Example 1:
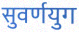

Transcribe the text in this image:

सुवर्णयुग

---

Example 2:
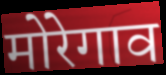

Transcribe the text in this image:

मोरेगाव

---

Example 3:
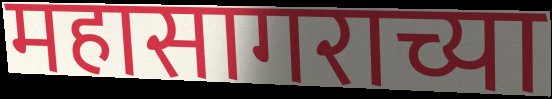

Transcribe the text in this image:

महासागराच्या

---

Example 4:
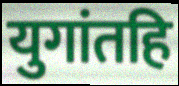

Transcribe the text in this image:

युगांतहि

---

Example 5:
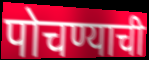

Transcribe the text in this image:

पोचण्याची